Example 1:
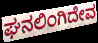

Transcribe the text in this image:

ಘನಲಿಂಗಿದೇವ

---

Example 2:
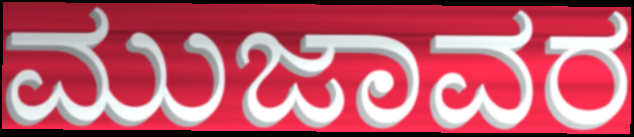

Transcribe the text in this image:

ಮುಜಾವರ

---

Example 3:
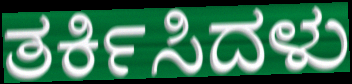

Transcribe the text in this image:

ತರ್ಕಿಸಿದಳು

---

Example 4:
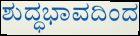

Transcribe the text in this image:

ಶುದ್ಧಭಾವದಿಂದ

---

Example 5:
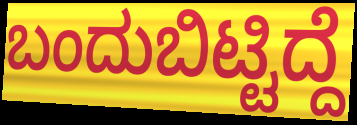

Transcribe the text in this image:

ಬಂದುಬಿಟ್ಟಿದ್ದೆ